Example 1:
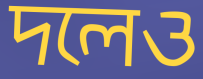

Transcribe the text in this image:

দলেও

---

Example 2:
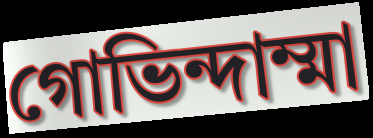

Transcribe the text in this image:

গোভিন্দাম্মা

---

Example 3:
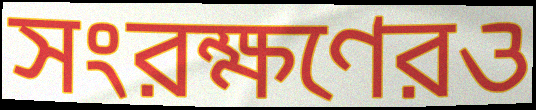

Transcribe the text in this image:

সংরক্ষণেরও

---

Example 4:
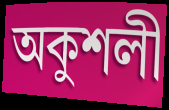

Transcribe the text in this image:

অকুশলী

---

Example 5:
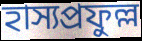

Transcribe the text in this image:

হাস্যপ্রফুল্ল